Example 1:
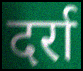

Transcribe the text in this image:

दर्रा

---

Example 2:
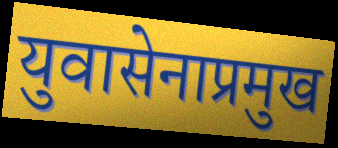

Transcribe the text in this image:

युवासेनाप्रमुख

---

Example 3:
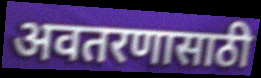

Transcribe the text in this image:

अवतरणासाठी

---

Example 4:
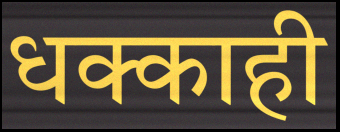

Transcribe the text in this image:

धक्काही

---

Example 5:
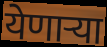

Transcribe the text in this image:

येणाऱ्या